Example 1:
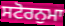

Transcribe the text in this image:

ਸਟੋਰਨੁਮਾ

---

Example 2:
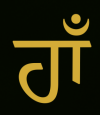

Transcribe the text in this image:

ਹਾਁ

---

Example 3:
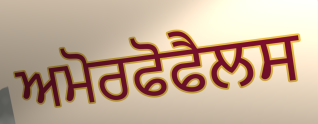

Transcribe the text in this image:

ਅਮੋਰਫੋਫੈਲਸ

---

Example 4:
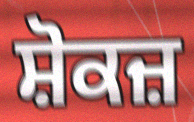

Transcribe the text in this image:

ਸ਼ੋਕਜ਼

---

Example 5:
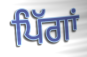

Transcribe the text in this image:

ਪਿੱਗਾਂ